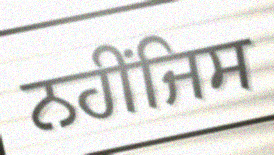
ਨਹੀਂਜਿਸ